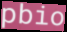
pbio